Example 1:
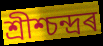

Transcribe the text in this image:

শ্ৰীশ্চন্দ্ৰৰ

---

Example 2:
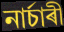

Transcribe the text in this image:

নাৰ্চাৰী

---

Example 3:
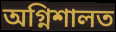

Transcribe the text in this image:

অগ্নিশালত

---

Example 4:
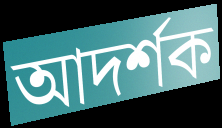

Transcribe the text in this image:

আদৰ্শক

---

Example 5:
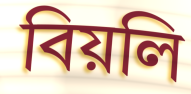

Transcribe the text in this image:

বিয়লি